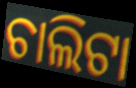
ଚାଲିଟା